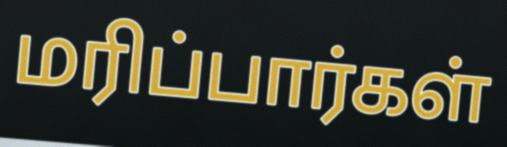
மரிப்பார்கள்